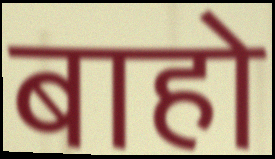
बाहो